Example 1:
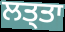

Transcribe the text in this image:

ਲਤ੍ਤਾ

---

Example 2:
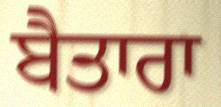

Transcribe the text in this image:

ਬੈਤਾਰਾ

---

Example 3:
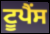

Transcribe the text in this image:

ਟੂਪੈਂਸ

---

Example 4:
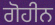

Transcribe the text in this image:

ਗੋਹੀਨ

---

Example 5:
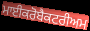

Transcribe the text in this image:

ਮਾਈਕਰੋਬੈਕਟਰੀਅਮ